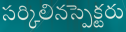
సర్కిలినస్పెక్టరు